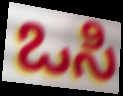
ಒಸಿ